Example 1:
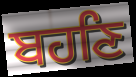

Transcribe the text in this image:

ਬਹਣਿ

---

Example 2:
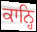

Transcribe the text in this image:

ਕਾਨ੍ਹਿ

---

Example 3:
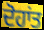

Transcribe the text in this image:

ਦੋਹਾਂਤ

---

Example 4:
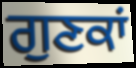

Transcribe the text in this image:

ਗੁਣਕਾਂ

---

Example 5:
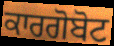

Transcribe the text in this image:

ਕਾਰਗੋਬੋਟ